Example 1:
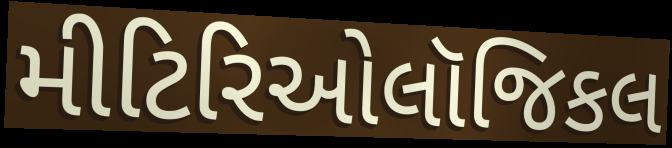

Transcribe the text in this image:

મીટિરિઓલૉજિકલ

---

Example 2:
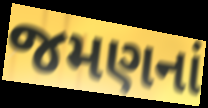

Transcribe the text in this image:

જમણનાં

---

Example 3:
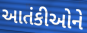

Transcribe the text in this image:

આતંકીઓને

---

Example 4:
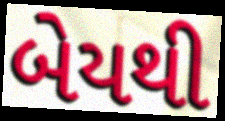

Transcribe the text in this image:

બેયથી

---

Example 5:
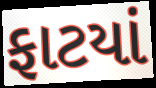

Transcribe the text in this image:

ફાટયાં